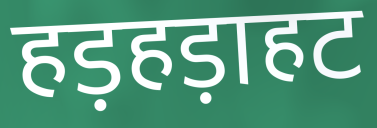
हड़हड़ाहट